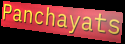
Panchayats